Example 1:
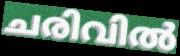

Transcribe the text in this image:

ചരിവിൽ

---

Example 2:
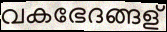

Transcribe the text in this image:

വകഭേദങ്ങള്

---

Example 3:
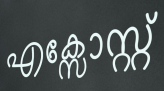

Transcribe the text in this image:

എക്സോസ്റ്റ്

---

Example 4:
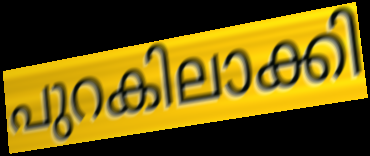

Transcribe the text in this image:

പുറകിലാക്കി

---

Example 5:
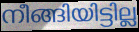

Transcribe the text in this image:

നീങ്ങിയിട്ടില്ല